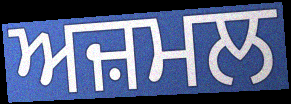
ਅਜ਼ਮਲ